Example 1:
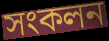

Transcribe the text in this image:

সংকলন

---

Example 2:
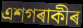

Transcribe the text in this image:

এশগৰাকীৰ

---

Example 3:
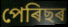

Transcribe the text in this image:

পেৰিছৰ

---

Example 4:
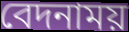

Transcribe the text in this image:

বেদনাময়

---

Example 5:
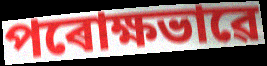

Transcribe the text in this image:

পৰোক্ষভাৱে